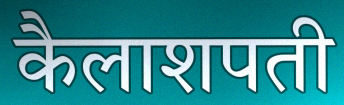
कैलाशपती